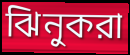
ঝিনুকরা